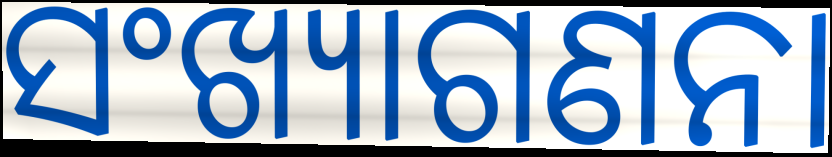
ସଂଖ୍ୟାଗଣନା